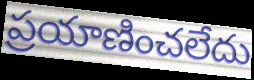
ప్రయాణించలేదు